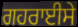
ਗਹਰਾਈਸੇ